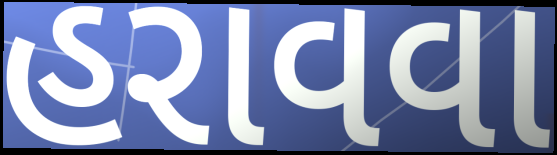
હરાવવા